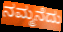
ನಮ್ಮನೆದು